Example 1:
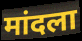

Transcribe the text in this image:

मांदला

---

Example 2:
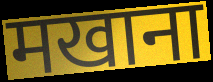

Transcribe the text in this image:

मखाना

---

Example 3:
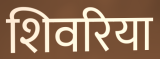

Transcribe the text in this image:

शिवरिया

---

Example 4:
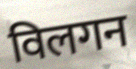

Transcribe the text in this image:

विलगन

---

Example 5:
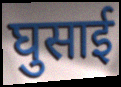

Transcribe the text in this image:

घुसाई